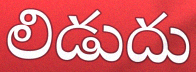
లిడుదు